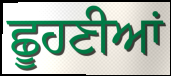
ਛੂਹਣੀਆਂ